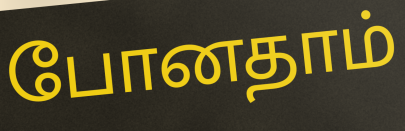
போனதாம்